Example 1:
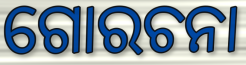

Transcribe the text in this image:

ଗୋରଚନା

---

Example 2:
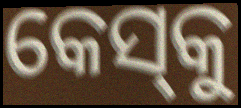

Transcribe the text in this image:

କେସ୍‌କୁ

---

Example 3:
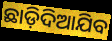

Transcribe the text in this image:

ଛାଡ଼ିଦିଆଯିବ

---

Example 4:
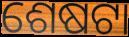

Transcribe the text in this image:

ଶେଷଟା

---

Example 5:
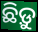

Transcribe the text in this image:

ଛିଡ଼ୁ